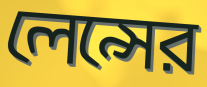
লেন্সের